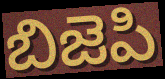
బిజెపి